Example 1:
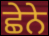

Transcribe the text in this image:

ਛੇਨੇ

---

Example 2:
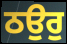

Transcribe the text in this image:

ਠਉਰੁ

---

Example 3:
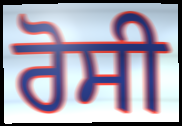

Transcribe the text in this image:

ਰੋਸੀ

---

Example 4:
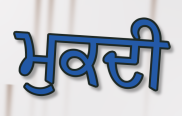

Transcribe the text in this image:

ਮੁਕਦੀ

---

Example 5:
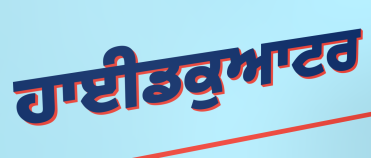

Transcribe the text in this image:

ਹਾਈਡਕੁਆਟਰ